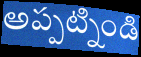
అప్పట్నిండి